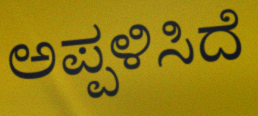
ಅಪ್ಪಳಿಸಿದೆ